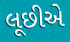
લૂછીએ